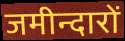
जमीन्दारों